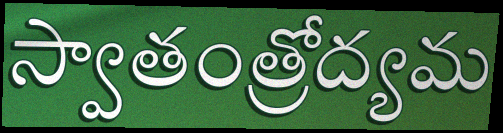
స్వాతంత్రోద్యమ